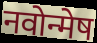
नवोन्‍मेष